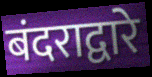
बंदराद्वारे